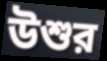
উশুর